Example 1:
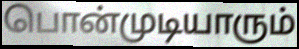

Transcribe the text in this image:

பொன்முடியாரும்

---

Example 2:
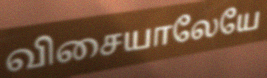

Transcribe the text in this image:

விசையாலேயே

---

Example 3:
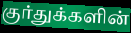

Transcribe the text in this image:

குர்துக்களின்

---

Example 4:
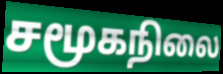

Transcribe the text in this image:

சமூகநிலை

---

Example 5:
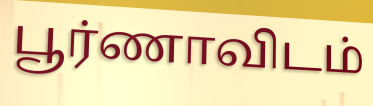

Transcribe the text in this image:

பூர்ணாவிடம்